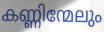
കണ്ണിന്മേലും